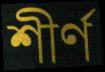
শীৰ্ণ